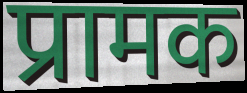
प्रामक